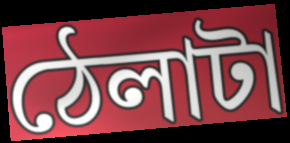
ঠেলাটা